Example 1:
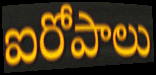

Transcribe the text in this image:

ఐరోపాలు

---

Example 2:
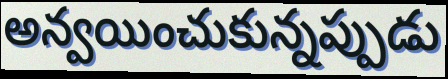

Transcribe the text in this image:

అన్వయించుకున్నప్పుడు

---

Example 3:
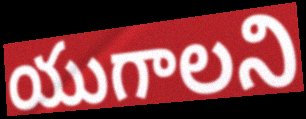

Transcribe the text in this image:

యుగాలని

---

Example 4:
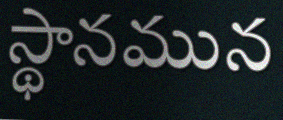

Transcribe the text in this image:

స్థానమున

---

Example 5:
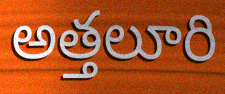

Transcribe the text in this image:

అత్తలూరి